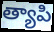
త్యాపి